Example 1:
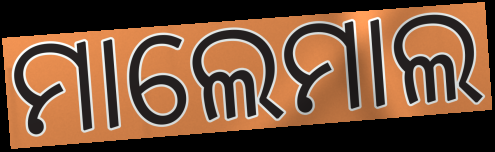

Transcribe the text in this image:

ମାଲେମାଲ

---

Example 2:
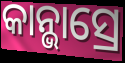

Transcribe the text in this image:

କାନ୍ଭାସ୍ରେ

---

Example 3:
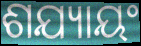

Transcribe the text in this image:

ଶଯ୍ୟାୟଂ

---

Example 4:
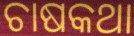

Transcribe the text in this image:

ଚାଷକଥା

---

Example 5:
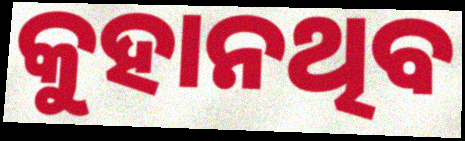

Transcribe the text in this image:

କୁହାନଥିବ